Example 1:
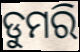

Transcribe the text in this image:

ଡୁମରି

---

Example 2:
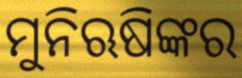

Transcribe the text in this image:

ମୁନିଋଷିଙ୍କର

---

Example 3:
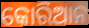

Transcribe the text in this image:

କୋରିଆନ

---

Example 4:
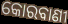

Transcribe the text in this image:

କୋରବାଣୀ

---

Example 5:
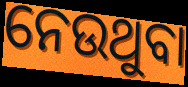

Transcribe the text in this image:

ନେଉଥୁବା